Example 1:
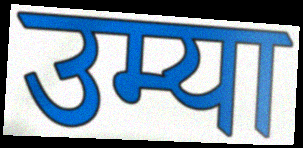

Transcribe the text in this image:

उम्या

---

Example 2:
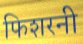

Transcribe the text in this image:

फिशरनी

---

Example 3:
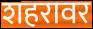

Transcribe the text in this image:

शहरावर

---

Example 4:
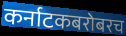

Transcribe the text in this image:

कर्नाटकबरोबरच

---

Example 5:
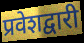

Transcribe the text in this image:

प्रवेशद्वारी